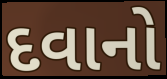
દવાનો